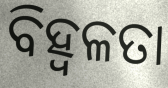
ବିହ୍ଵଳତା